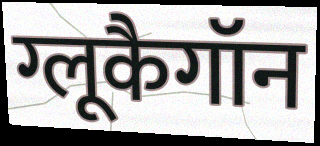
ग्लूकैगॉन